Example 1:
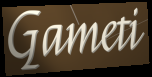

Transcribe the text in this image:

Gameti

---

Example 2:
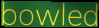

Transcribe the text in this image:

bowled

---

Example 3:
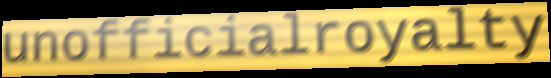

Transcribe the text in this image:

unofficialroyalty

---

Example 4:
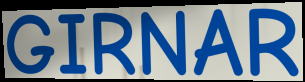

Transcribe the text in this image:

GIRNAR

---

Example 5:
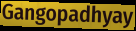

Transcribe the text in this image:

Gangopadhyay